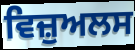
ਵਿਜ਼ੁਅਲਸ